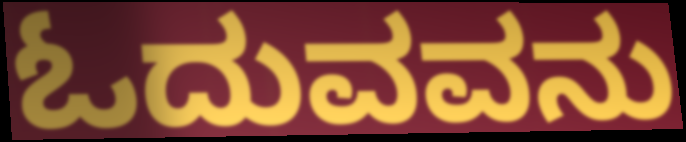
ಓದುವವನು